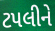
ટપલીને